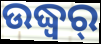
ଉଦ୍ଧ୍ୱର୍